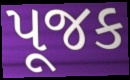
પૂજક